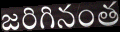
జరిగినంత